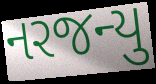
નરજન્યુ